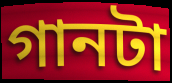
গানটা